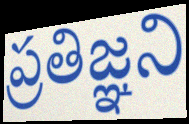
ప్రతిజ్ఞని